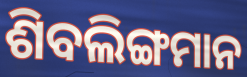
ଶିବଲିଙ୍ଗମାନ